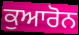
ਕੁਆਰੋਨ